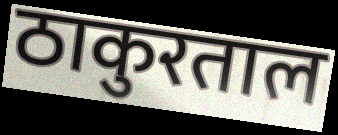
ठाकुरताल